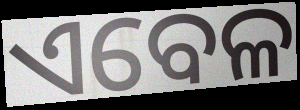
ଏବେଳ